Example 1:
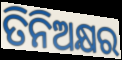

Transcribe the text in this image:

ତିନିଅକ୍ଷର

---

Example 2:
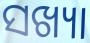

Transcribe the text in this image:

ସଖ୍ୟା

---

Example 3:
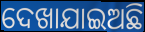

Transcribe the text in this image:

ଦେଖାଯାଇଅଛି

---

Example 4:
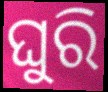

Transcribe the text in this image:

ଘୁରି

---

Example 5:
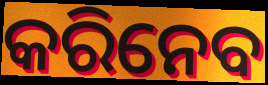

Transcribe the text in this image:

କରିନେବ